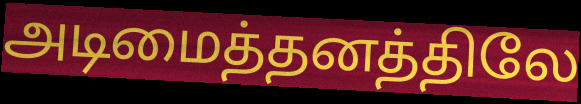
அடிமைத்தனத்திலே